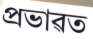
প্ৰভাৱত